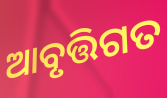
ଆବୃତ୍ତିଗତ